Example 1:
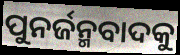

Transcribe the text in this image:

ପୁନର୍ଜନ୍ମବାଦକୁ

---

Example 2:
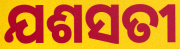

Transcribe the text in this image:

ଯଶସତୀ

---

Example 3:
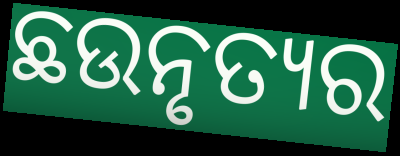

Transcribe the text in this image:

ଛଉନୃତ୍ୟର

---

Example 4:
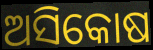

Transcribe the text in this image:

ଅସିକୋଷ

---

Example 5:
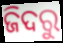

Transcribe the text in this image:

ଜିଦରୁ